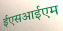
ईएसआईएम